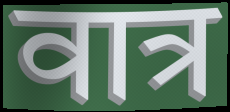
वात्र